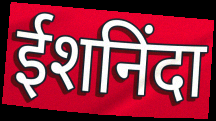
ईशनिंदा